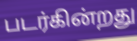
படர்கின்றது